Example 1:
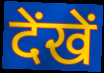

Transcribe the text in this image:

देंखें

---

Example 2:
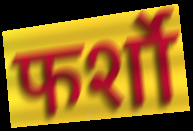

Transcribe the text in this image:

फर्शो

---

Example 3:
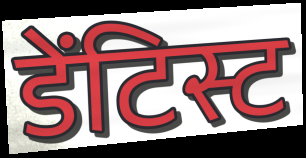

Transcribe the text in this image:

डेंटिस्ट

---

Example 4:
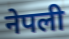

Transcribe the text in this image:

नेपली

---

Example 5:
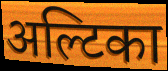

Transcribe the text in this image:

अल्टिका